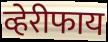
व्हेरीफाय